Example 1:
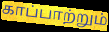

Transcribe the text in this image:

காப்பாற்றும்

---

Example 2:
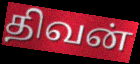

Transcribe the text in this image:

திவன்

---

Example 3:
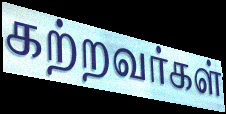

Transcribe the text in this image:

கற்றவர்கள்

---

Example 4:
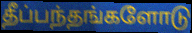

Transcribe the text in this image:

தீப்பந்தங்களோடு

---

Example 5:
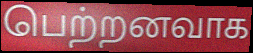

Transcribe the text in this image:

பெற்றனவாக